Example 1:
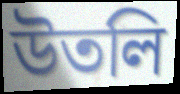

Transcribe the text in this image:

উতলি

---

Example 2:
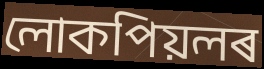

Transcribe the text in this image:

লোকপিয়লৰ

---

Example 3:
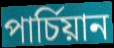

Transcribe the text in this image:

পাৰ্চিয়ান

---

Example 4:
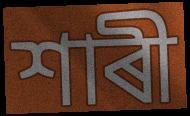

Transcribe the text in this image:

শাৰী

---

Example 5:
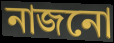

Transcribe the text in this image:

নাজনো